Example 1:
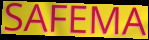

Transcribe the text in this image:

SAFEMA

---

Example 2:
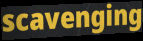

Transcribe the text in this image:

scavenging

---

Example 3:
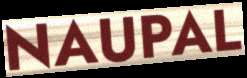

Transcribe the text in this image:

NAUPAL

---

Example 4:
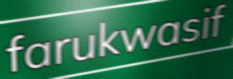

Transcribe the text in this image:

farukwasif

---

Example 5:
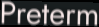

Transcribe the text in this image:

Preterm